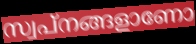
സ്വപ്നങ്ങളാണോ